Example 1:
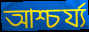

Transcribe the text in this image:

আশ্চৰ্য্য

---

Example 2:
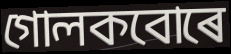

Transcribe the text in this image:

গোলকবোৰে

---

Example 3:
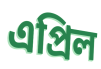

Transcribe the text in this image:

এপ্ৰিল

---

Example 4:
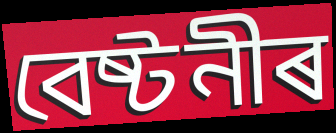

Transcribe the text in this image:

বেষ্টনীৰ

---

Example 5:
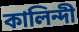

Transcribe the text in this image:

কালিন্দী